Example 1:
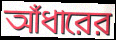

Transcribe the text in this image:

আঁধারের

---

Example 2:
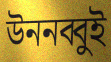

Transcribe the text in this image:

উননব্বুই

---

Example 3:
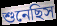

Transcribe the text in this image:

শুনেছিস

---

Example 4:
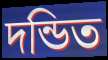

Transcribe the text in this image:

দন্ডিত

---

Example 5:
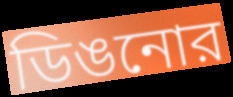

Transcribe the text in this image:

ডিঙনোর